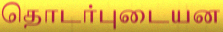
தொடர்புடையன